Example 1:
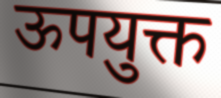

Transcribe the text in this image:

ऊपयुक्त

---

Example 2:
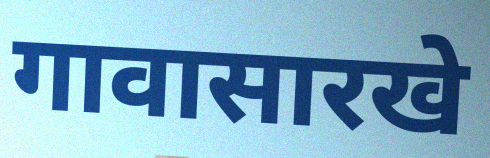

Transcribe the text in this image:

गावासारखे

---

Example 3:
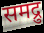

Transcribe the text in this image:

समद्रु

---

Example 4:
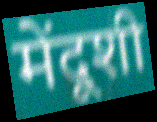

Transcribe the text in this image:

मेंदूशी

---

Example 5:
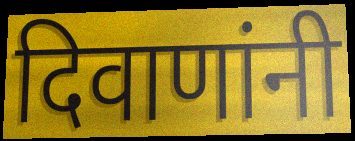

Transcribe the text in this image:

दिवाणांनी